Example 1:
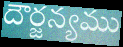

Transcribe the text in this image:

దౌర్జన్యము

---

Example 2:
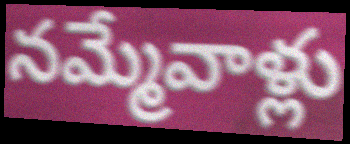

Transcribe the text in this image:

నమ్మేవాళ్లు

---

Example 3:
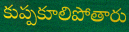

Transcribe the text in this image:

కుప్పకూలిపోతారు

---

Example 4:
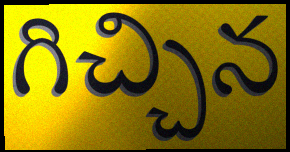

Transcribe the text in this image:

గిచ్చిన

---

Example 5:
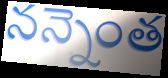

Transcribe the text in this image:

నన్నెంత